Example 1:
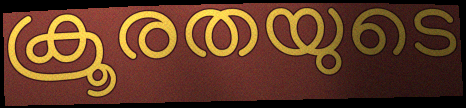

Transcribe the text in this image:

ക്രൂരതയുടെ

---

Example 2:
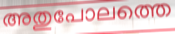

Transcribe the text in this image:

അതുപോലത്തെ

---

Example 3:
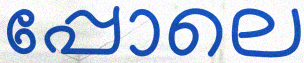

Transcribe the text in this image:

പ്പോലെ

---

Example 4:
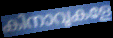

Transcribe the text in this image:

കിനാവുകളേ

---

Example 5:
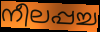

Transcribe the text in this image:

നീലപ്പച്ച